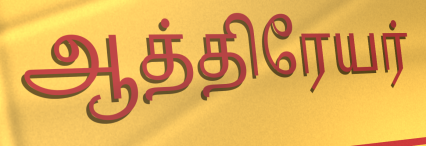
ஆத்திரேயர்